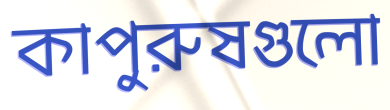
কাপুরুষগুলো